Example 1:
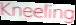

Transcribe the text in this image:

Kneeling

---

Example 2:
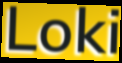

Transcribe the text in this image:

Loki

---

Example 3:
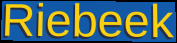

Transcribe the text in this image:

Riebeek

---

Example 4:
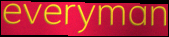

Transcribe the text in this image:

everyman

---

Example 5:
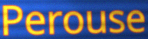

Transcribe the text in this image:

Perouse